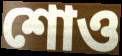
শোও